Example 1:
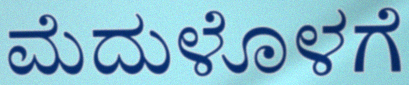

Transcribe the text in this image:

ಮೆದುಳೊಳಗೆ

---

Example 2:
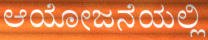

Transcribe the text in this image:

ಆಯೋಜನೆಯಲ್ಲಿ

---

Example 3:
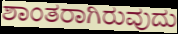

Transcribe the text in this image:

ಶಾಂತರಾಗಿರುವುದು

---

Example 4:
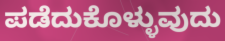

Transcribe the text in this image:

ಪಡೆದುಕೊಳ್ಳುವುದು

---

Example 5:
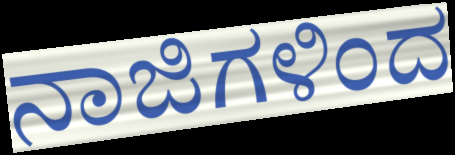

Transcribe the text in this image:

ನಾಜಿಗಳಿಂದ